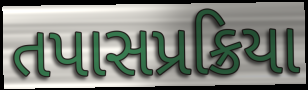
તપાસપ્રક્રિયા